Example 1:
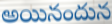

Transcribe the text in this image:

అయినందున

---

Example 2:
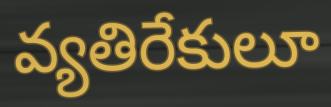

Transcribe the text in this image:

వ్యతిరేకులూ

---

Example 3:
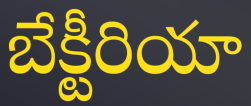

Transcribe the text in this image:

బేక్టీరియా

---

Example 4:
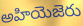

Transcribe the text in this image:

అహియెజెరు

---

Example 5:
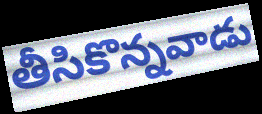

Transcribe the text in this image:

తీసికొన్నవాడు